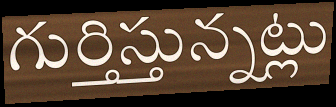
గుర్తిస్తున్నట్లు